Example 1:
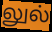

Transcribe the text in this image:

லுல்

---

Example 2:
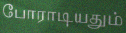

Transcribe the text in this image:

போராடியதும்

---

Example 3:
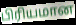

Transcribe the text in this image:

பிரியமான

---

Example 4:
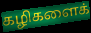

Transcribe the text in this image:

கழிகளைக்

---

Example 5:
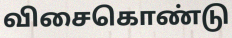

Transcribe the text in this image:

விசைகொண்டு